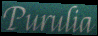
Purulia